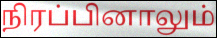
நிரப்பினாலும்